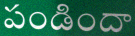
పండిందా